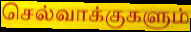
செல்வாக்குகளும்